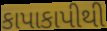
કાપાકાપીથી